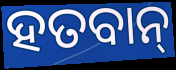
ହତବାନ୍